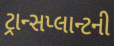
ટ્રાન્સપ્લાન્ટની